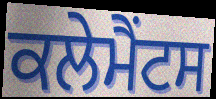
ਕਲੇਮੈਂਟਸ